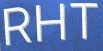
RHT